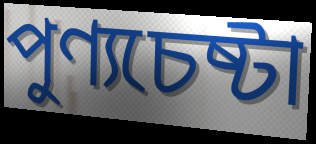
পুণ্যচেষ্টা